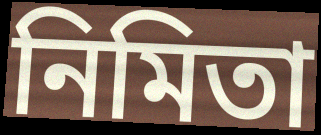
নিমিতা